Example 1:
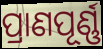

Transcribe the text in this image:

ପ୍ରାଣପୂର୍ଣ୍ଣ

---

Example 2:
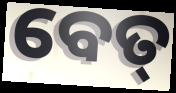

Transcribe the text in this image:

ବେତ୍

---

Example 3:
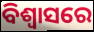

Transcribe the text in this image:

ବିଶ୍ବାସରେ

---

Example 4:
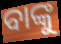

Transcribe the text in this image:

ବାଙ୍କୁ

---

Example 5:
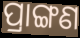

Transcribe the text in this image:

ପ୍ରାଙ୍ଗଣ